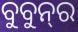
ବୁବୁନ୍‌ର